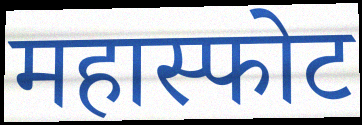
महास्फोट